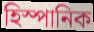
হিস্পানিক